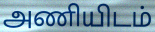
அணியிடம்